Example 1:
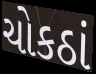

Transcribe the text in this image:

ચોકઠાં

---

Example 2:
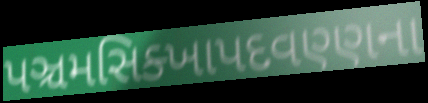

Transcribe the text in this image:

પઞ્ચમસિક્ખાપદવણ્ણના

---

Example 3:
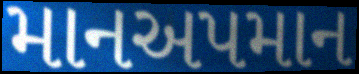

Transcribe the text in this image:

માનઅપમાન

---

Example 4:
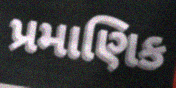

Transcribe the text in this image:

પ્રમાણિક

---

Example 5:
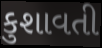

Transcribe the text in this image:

કુશાવતી